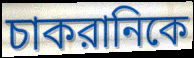
চাকরানিকে